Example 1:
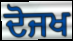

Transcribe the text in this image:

ਦੋਜਖ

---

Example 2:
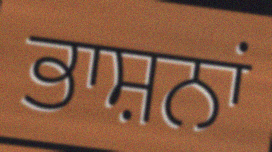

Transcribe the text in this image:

ਭਾਸ਼ਨਾਂ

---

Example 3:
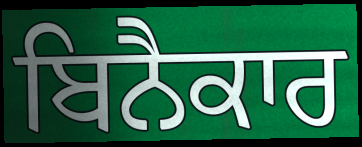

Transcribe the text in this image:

ਬਿਨੈਕਾਰ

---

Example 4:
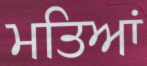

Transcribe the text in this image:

ਮਤਿਆਂ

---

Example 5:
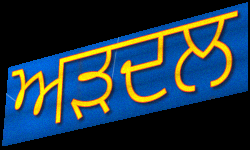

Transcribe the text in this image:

ਅੜਦਲ